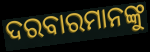
ଦରବାରମାନଙ୍କୁ